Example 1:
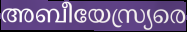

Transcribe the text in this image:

അബീയേസ്ര്യരെ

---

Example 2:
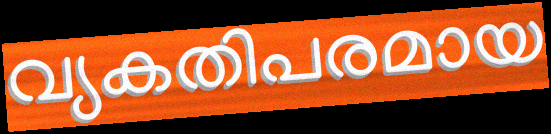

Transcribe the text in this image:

വ്യകതിപരമായ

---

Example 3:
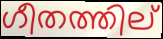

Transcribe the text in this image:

ഗീതത്തില്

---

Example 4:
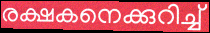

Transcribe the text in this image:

രക്ഷകനെക്കുറിച്ച്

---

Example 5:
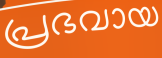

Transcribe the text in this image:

പ്രഭവായ